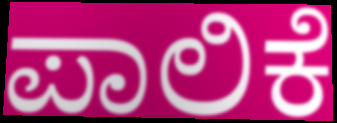
ಪಾಲಿಕೆ